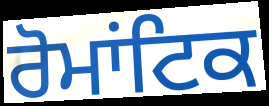
ਰੋਮਾਂਟਿਕ